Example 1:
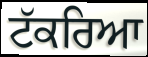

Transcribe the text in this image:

ਟੱਕਰਿਆ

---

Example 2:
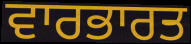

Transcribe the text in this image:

ਵਾਰਭਾਰਤ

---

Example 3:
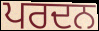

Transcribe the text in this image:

ਪਰਦਨ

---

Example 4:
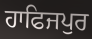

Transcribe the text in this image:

ਹਾਫਿਜਪੁਰ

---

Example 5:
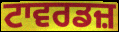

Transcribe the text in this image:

ਟਾਵਰਡਜ਼